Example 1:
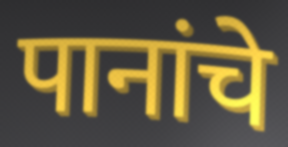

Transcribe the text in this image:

पानांचे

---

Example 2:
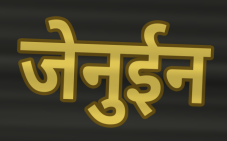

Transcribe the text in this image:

जेनुईन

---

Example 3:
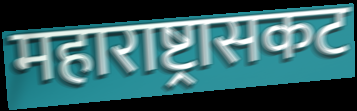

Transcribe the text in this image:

महाराष्ट्रासकट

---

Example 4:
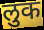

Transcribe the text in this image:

लुक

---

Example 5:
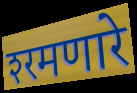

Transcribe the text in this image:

श्रमणारे